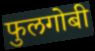
फुलगोबी